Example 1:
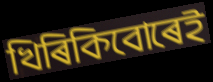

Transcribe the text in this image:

খিৰিকিবোৰেই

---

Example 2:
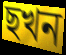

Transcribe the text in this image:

ছখন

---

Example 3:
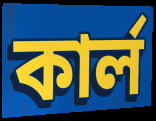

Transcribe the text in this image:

কাৰ্ল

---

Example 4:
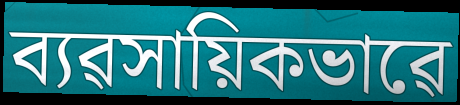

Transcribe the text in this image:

ব্যৱসায়িকভাৱে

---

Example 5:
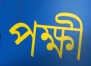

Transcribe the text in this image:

পক্ষী